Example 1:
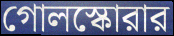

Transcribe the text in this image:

গোলস্কোরার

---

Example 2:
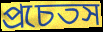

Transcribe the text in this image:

প্রচেতস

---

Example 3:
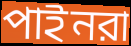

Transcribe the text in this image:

পাইনরা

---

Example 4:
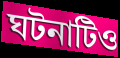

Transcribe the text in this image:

ঘটনাটিও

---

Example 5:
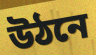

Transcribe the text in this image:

উঠনে